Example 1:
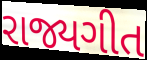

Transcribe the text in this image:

રાજ્યગીત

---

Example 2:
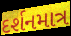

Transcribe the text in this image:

દર્શનમાત્ર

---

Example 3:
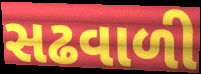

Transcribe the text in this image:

સઢવાળી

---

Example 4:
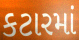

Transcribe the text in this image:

કટારમાં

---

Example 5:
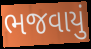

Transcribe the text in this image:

ભજવાયું